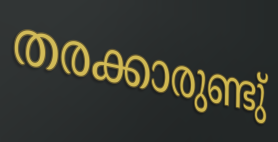
തരക്കാരുണ്ടു്